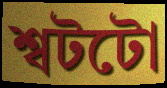
শ্বটটো